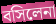
বসিলেনা